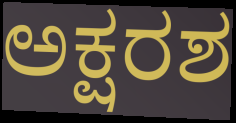
ಅಕ್ಷರಶ